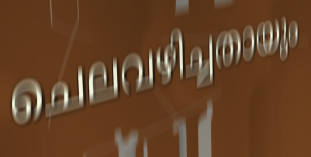
ചെലവഴിച്ചതായും